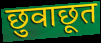
छुवाछूत